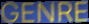
GENRE